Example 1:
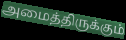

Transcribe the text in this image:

அமைத்திருக்கும்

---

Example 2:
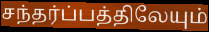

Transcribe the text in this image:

சந்தர்ப்பத்திலேயும்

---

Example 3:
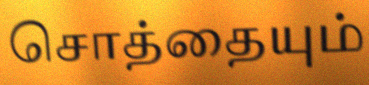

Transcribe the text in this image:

சொத்தையும்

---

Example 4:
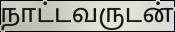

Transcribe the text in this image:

நாட்டவருடன்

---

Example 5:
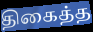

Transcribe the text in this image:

திகைத்த